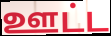
ஊட்ட